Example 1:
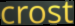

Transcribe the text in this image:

crost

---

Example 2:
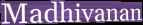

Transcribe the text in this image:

Madhivanan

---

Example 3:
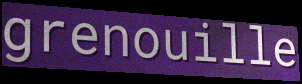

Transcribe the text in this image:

grenouille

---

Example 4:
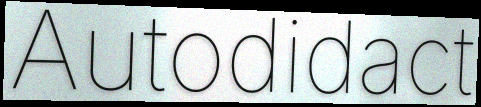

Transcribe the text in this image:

Autodidact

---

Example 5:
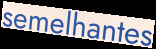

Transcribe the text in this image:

semelhantes